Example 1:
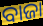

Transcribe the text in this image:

ବାଜା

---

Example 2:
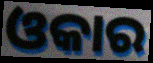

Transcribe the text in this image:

ଓକାର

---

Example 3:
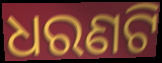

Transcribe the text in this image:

ଧରଣଟି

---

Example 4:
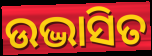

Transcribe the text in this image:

ଉଦ୍ଭାସିତ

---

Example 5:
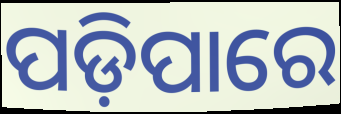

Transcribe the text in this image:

ପଡ଼ିପାରେ